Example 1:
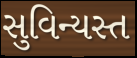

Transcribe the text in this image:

સુવિન્યસ્ત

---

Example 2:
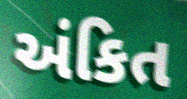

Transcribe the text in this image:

અંકિત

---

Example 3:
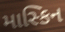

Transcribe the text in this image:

માસ્કિન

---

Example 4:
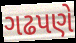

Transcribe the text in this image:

ગઢપણે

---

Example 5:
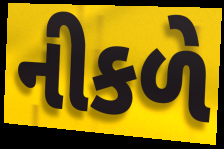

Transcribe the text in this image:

નીકળે